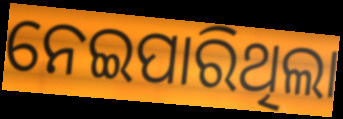
ନେଇପାରିଥିଲା